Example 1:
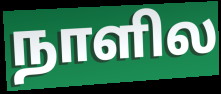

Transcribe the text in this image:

நாளில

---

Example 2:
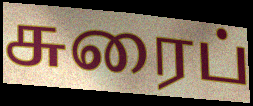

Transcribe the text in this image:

சுரைப்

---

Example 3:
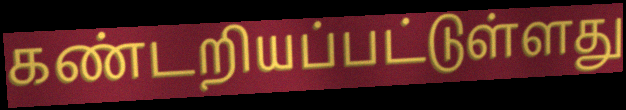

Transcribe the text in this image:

கண்டறியப்பட்டுள்ளது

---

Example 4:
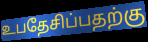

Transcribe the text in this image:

உபதேசிப்பதற்கு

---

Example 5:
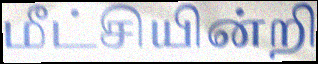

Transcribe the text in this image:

மீட்சியின்றி